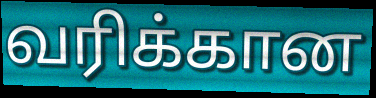
வரிக்கான